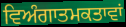
ਵਿਅੰਗਾਤਮਕਤਾਵਾਂ